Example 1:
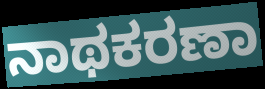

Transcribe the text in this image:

ನಾಥಕರಣಾ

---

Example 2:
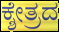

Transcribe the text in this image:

ಕ್ಶೇತ್ರದ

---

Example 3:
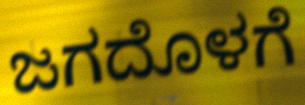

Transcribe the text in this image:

ಜಗದೊಳಗೆ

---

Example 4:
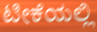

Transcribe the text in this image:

ಟೀಕೆಯಲ್ಲಿ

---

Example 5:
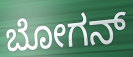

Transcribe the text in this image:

ಬೋಗನ್